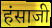
हंसाजी